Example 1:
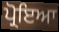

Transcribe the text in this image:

ਪ੍ਰੋਇਆ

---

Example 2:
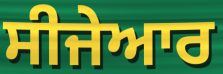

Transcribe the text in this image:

ਸੀਜੇਆਰ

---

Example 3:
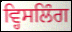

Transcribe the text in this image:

ਵ੍ਹਿਸਲਿੰਗ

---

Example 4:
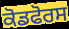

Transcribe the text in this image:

ਕੋਡਫੋਰਸ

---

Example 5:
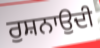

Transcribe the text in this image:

ਰੁਸ਼ਨਾਉਦੀ